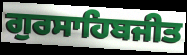
ਗੁਰਸਾਹਿਬਜੀਤ